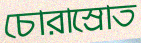
চোরাস্রোত